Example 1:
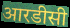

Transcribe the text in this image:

आरडीसी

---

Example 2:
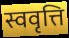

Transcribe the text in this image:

स्ववृत्ति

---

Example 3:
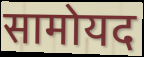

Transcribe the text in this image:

सामोयद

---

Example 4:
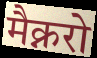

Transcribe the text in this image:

मैक्नरो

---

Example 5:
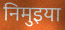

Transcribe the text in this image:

निमुइया